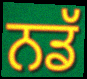
ਨਡੱ